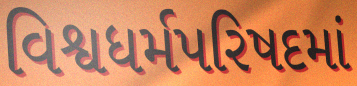
વિશ્વધર્મપરિષદમાં